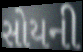
સોયની